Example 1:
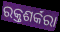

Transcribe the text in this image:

ରକ୍ତଶର୍କରା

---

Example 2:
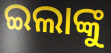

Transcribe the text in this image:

ଇଲାଙ୍କୁ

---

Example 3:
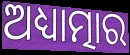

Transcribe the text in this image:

ଅଧ୍ୟାତ୍ମାର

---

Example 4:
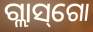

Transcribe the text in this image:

ଗ୍ଲାସ୍‌ଗୋ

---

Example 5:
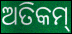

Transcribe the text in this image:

ଅତିକମ୍